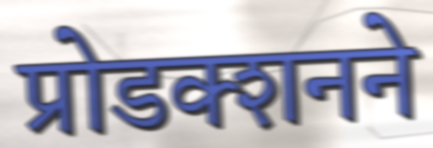
प्रोडक्शनने